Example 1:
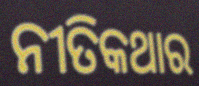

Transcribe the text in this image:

ନୀତିକଥାର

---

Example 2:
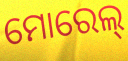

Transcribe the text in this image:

ମୋରେଲ୍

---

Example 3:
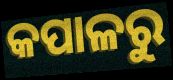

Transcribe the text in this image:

କପାଳରୁ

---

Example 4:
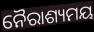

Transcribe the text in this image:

ନୈରାଶ୍ୟମୟ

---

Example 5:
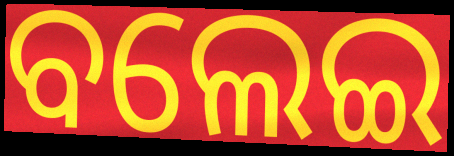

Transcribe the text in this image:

ବଲେଇ